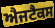
ਐਜਟੈਕਸ